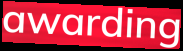
awarding